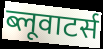
ब्लूवाटर्स